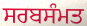
ਸਰਬਸੰਮਤ